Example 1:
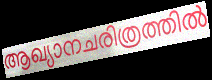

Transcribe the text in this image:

ആഖ്യാനചരിത്രത്തിൽ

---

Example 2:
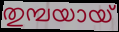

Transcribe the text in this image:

തുമ്പയായ്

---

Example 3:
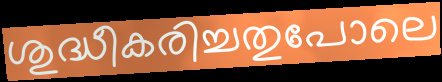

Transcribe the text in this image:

ശുദ്ധീകരിച്ചതുപോലെ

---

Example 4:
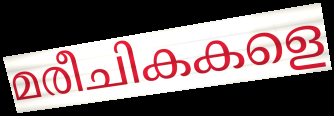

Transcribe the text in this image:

മരീചികകളെ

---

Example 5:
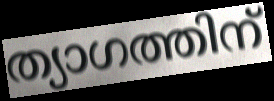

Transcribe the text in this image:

ത്യാഗത്തിന്